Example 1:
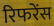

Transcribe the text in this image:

रिफरेंस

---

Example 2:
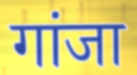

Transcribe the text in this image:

गांजा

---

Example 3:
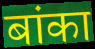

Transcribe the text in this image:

बांका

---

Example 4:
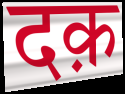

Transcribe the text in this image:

दक़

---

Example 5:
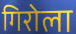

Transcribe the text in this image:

गिरोला